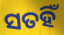
ସତହିଁ